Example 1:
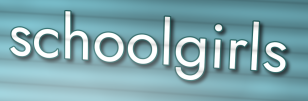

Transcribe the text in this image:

schoolgirls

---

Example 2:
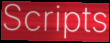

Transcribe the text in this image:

Scripts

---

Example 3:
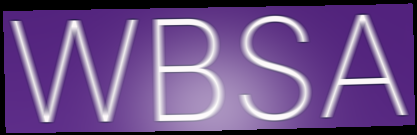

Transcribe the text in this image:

WBSA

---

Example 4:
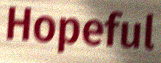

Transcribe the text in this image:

Hopeful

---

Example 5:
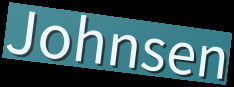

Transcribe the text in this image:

Johnsen